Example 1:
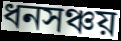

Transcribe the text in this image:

ধনসঞ্চয়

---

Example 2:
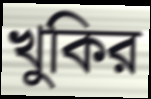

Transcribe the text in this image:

খুকির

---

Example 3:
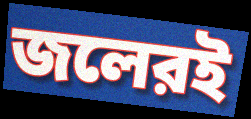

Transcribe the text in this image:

জলেরই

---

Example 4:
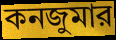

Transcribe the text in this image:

কনজুমার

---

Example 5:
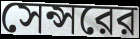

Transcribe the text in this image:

সেন্সরের